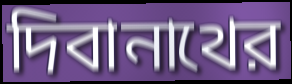
দিবানাথের